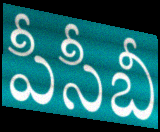
పీసీబీ